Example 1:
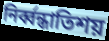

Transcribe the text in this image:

নির্ব্বন্ধাতিশয়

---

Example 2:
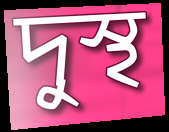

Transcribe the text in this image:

দুস্থ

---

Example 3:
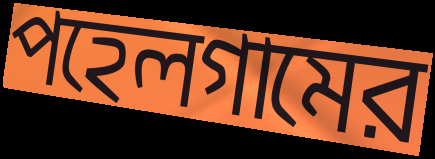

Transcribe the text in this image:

পহেলগামের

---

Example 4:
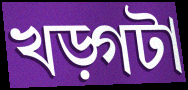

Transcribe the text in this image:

খড়্গটা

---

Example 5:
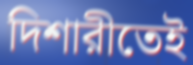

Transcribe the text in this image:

দিশারীতেই